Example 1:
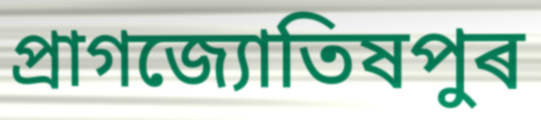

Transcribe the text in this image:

প্ৰাগজ্যোতিষপুৰ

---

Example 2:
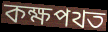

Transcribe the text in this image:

কক্ষপথত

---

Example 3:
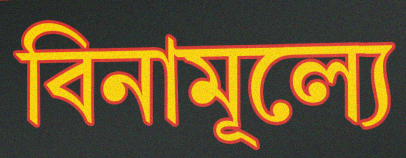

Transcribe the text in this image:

বিনামূল্যে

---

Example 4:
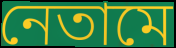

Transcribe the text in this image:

নেতামে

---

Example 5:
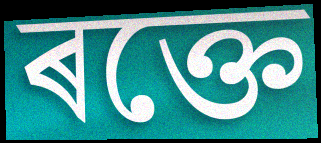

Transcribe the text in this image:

ৰক্তে